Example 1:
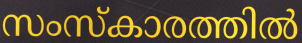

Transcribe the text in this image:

സംസ്കാരത്തിൽ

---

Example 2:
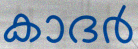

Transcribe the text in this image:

കാദർ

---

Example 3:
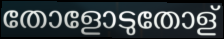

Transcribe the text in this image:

തോളോടുതോള്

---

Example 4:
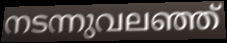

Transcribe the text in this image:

നടന്നുവലഞ്ഞ്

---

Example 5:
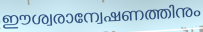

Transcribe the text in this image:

ഈശ്വരാന്വേഷണത്തിനും